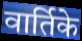
वार्तिके